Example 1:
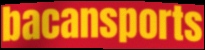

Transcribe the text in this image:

bacansports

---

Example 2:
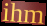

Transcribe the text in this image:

ihm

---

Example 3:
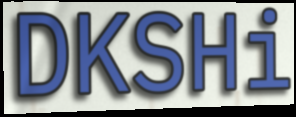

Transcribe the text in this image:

DKSHi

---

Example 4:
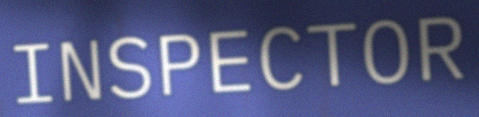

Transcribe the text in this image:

INSPECTOR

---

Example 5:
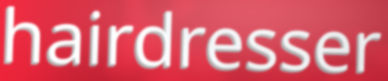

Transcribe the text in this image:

hairdresser